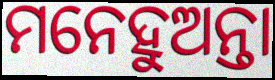
ମନେହୁଅନ୍ତା